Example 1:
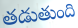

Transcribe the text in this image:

తడుతుంది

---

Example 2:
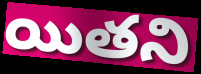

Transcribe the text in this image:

యితని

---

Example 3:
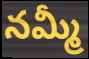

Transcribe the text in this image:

నమ్మీ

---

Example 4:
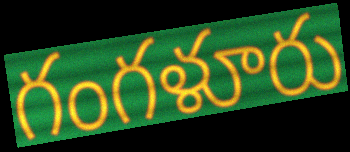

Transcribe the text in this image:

గంగళూరు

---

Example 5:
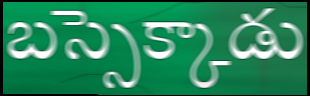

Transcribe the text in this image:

బస్సెక్కాడు